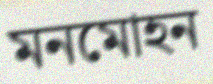
মনমোহন